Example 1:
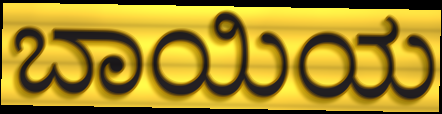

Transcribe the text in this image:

ಬಾಯಿಯ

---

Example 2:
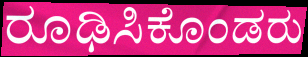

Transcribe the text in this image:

ರೂಢಿಸಿಕೊಂಡರು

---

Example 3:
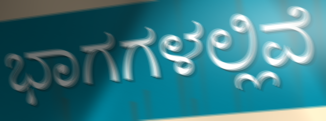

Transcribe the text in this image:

ಭಾಗಗಳಲ್ಲಿವೆ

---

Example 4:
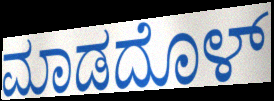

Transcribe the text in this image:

ಮಾಡದೊಳ್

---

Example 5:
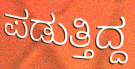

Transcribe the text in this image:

ಪಡುತ್ತಿದ್ದ